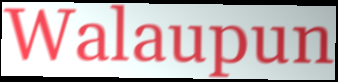
Walaupun